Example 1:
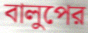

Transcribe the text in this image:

বালুপের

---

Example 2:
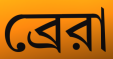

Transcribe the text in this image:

ব্রেরা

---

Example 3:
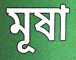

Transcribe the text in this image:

মূষা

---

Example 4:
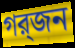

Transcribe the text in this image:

গর্‍জন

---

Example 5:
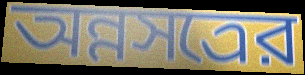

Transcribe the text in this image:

অন্নসত্রের